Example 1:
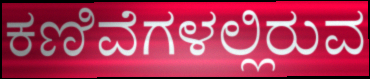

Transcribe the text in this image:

ಕಣಿವೆಗಳಲ್ಲಿರುವ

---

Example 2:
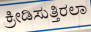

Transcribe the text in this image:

ಕ್ರೀಡಿಸುತ್ತಿರಲಾ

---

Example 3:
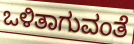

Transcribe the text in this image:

ಒಳಿತಾಗುವಂತೆ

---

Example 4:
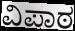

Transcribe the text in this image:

ವಿಪಾಠ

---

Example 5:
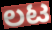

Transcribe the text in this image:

ಲಟ